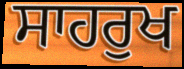
ਸਾਹਰੁਖ